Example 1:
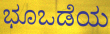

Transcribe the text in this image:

ಭೂಒಡೆಯ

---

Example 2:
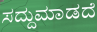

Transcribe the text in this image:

ಸದ್ದುಮಾಡದೆ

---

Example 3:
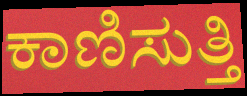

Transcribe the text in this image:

ಕಾಣಿಸುತ್ತಿ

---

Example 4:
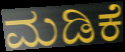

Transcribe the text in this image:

ಮಡಿಕೆ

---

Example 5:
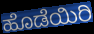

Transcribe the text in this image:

ಹೊಡೆಯಿರಿ